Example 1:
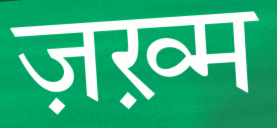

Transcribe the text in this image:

ज़ख़्म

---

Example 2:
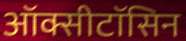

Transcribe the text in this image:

ऑक्सीटॉसिन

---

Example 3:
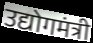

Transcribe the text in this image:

उद्योगमंत्री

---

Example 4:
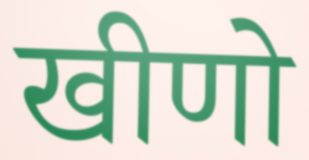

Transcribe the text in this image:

खीणो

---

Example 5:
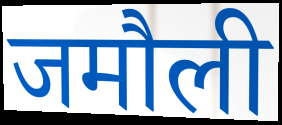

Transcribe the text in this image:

जमौली